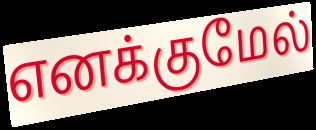
எனக்குமேல்